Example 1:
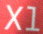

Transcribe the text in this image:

Xl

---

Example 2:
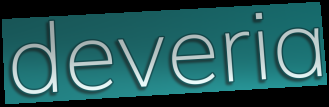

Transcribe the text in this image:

deveria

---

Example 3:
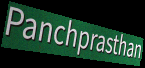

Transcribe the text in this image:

Panchprasthan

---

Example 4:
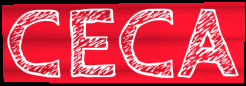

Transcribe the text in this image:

CECA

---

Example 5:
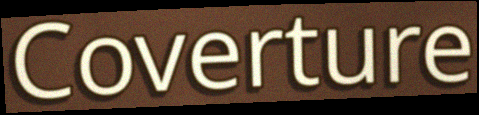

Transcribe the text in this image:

Coverture